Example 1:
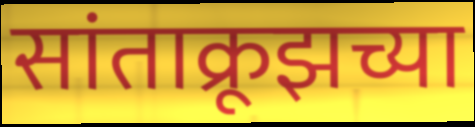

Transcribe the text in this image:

सांताक्रूझच्या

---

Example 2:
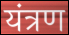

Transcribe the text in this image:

यंत्रण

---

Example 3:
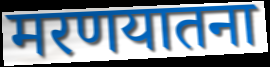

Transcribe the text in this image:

मरणयातना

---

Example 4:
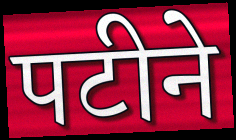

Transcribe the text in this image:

पटीने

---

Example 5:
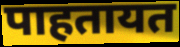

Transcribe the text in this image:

पाहतायत